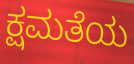
ಕ್ಷಮತೆಯ